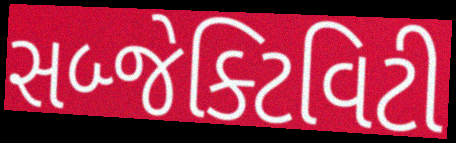
સબ્જેક્ટિવિટી